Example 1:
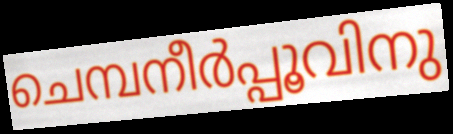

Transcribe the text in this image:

ചെമ്പനീർപ്പൂവിനു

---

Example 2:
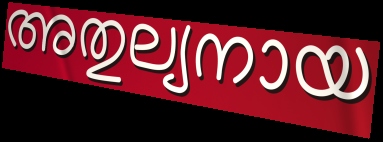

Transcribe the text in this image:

അതുല്യനായ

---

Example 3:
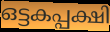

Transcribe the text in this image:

ഒട്ടകപ്പക്ഷി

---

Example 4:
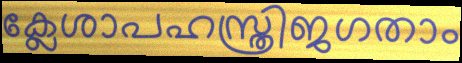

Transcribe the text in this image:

ക്ലേശാപഹസ്ത്രിജഗതാം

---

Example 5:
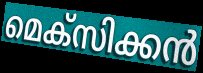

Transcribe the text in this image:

മെക്സിക്കൻ